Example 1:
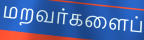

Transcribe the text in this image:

மறவர்களைப்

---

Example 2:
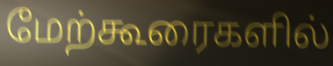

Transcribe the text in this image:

மேற்கூரைகளில்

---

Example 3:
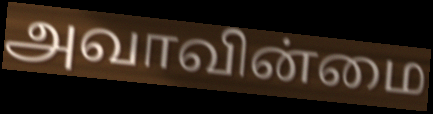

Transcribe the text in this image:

அவாவின்மை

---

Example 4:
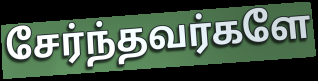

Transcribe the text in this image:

சேர்ந்தவர்களே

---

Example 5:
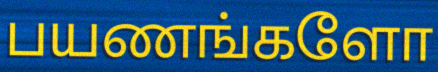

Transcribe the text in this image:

பயணங்களோ